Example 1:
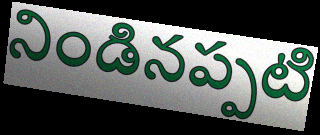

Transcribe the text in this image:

నిండినప్పటి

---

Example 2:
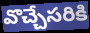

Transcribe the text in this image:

వొచ్చేసరికి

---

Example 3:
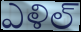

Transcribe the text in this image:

ఎళిల్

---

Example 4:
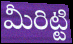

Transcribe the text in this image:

మీరిట్టి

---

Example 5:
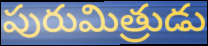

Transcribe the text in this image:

పురుమిత్రుడు